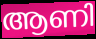
ആണി